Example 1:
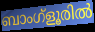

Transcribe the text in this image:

ബാംഗ്ളൂരിൽ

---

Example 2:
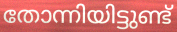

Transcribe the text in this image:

തോന്നിയിട്ടുണ്ട്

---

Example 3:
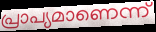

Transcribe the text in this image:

പ്രാപ്യമാണെന്ന്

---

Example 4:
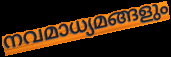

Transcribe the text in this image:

നവമാധ്യമങ്ങളും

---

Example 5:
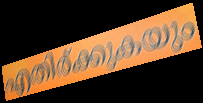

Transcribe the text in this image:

എതിര്ക്കുകയും